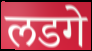
लडगे